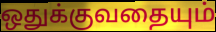
ஒதுக்குவதையும்